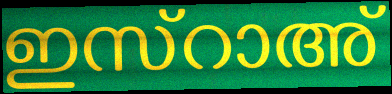
ഇസ്റാഅ്